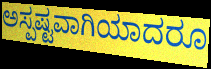
ಅಸ್ಪಷ್ಟವಾಗಿಯಾದರೂ